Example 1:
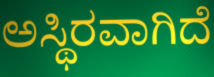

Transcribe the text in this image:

ಅಸ್ಥಿರವಾಗಿದೆ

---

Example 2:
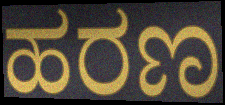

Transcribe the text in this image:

ಹರಣ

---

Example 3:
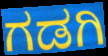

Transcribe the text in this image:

ಗಡಗಿ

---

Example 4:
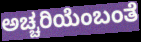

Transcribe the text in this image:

ಅಚ್ಚರಿಯೆಂಬಂತೆ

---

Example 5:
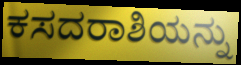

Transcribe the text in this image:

ಕಸದರಾಶಿಯನ್ನು